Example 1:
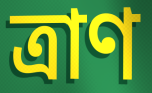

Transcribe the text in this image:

ত্রাণ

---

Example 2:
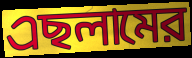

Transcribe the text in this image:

এছলামের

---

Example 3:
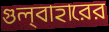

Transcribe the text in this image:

গুল্‌বাহারের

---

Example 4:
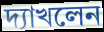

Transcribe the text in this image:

দ্যাখলেন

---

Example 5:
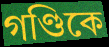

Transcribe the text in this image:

গণ্ডিকে